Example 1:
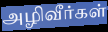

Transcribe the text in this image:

அழிவீர்கள்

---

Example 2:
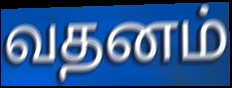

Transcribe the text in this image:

வதனம்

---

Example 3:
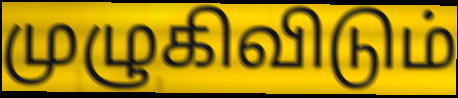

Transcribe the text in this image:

முழுகிவிடும்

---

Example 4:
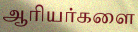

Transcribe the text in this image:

ஆரியர்களை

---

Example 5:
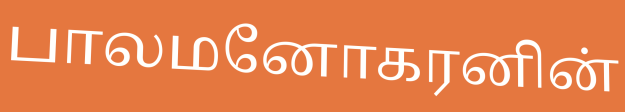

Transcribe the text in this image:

பாலமனோகரனின்